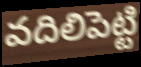
వదిలిపెట్టి